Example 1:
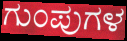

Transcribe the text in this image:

ಗುಂಪುಗಳ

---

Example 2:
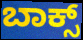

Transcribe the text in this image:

ಬಾಕ್ಸ್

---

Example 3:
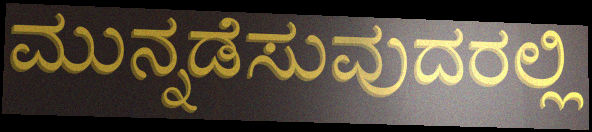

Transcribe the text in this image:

ಮುನ್ನಡೆಸುವುದರಲ್ಲಿ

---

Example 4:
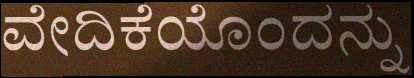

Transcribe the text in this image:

ವೇದಿಕೆಯೊಂದನ್ನು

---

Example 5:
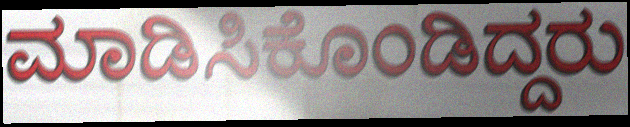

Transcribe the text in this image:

ಮಾಡಿಸಿಕೊಂಡಿದ್ದರು